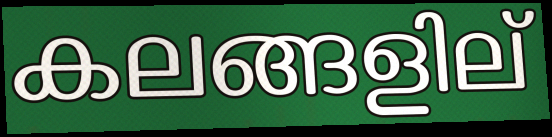
കലങ്ങളില്